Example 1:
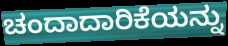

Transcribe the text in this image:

ಚಂದಾದಾರಿಕೆಯನ್ನು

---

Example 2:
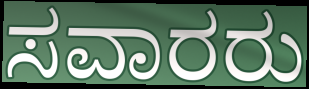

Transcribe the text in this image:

ಸವಾರರು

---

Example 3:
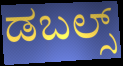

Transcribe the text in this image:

ಡಬಲ್ಸ್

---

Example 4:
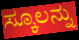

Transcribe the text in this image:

ಸ್ಕೂಲನ್ನು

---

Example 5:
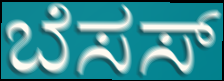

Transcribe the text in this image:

ಬೆಸಸ್